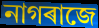
নাগৰাজে